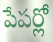
పేపర్లో